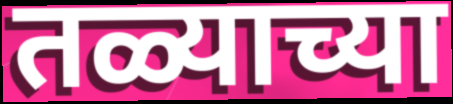
तळ्याच्या